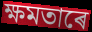
ক্ষমতাৰে